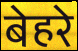
बेहरे